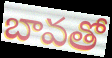
బావతో